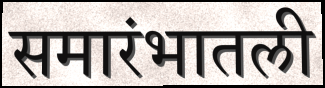
समारंभातली